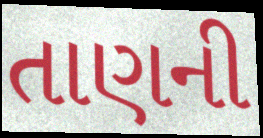
તાણની